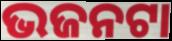
ଭଜନଟା